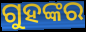
ଗୁହଙ୍କର